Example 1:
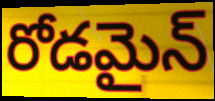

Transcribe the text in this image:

రోడమైన్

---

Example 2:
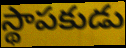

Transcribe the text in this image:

స్థాపకుడు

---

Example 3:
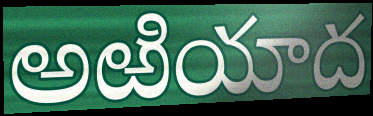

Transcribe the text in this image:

అఱియాద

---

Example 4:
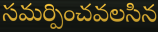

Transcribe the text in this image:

సమర్పించవలసిన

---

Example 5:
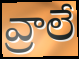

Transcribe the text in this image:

వ్రాలే